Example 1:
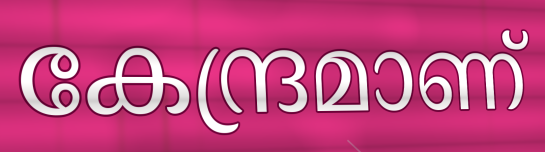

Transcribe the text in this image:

കേന്ദ്രമാണ്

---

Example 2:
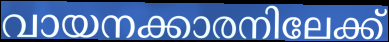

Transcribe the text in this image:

വായനക്കാരനിലേക്ക്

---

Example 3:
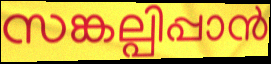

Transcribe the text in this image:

സങ്കല്പിപ്പാൻ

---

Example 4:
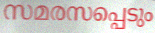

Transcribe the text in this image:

സമരസപ്പെടും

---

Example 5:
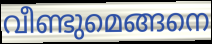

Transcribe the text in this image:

വീണ്ടുമെങ്ങനെ